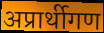
अप्रार्थीगण